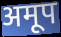
अमूप